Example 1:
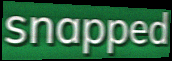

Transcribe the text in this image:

snapped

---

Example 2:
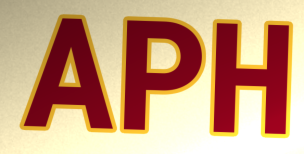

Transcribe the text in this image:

APH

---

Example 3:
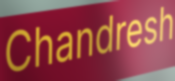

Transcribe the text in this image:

Chandresh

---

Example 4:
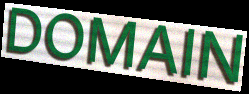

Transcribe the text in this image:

DOMAIN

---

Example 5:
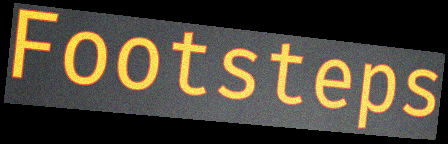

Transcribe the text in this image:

Footsteps